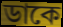
ডাকে